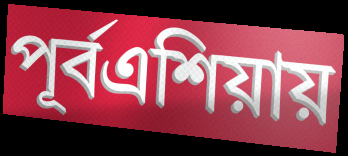
পূর্বএশিয়ায়